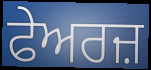
ਫੇਅਰਜ਼